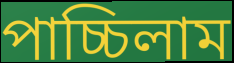
পাচ্চিলাম